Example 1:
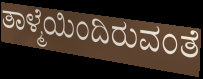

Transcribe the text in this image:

ತಾಳ್ಮೆಯಿಂದಿರುವಂತೆ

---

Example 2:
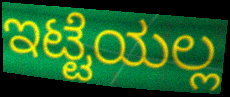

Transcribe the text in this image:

ಇಟ್ಟೆಯಲ್ಲ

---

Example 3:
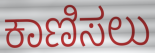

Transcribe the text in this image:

ಕಾಣಿಸಲು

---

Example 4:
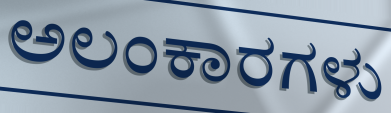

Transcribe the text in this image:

ಅಲಂಕಾರಗಳು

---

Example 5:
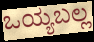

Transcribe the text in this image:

ಒಯ್ಯಬಲ್ಲ